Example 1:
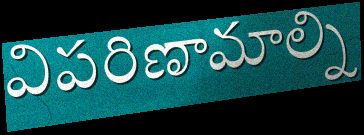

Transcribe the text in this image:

విపరిణామాల్ని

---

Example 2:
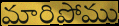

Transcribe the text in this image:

మారిపోము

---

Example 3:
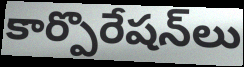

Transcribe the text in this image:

కార్పొరేషన్‌లు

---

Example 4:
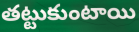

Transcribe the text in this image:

తట్టుకుంటాయి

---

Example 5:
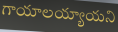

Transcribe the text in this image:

గాయాలయ్యాయని